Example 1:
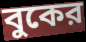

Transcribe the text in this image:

বুকের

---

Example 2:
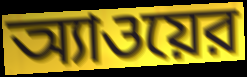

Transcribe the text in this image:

অ্যাওয়ের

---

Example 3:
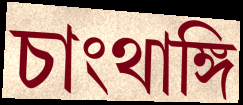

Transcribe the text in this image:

চাংথাঙ্গি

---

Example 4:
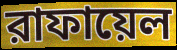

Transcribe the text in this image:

রাফায়েল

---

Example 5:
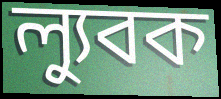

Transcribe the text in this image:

ল্যুবক